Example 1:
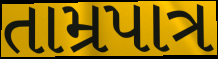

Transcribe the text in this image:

તામ્રપાત્ર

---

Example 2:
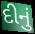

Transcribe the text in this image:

દીનું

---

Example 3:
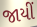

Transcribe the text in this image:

જાયીં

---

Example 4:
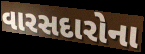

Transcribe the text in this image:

વારસદારોના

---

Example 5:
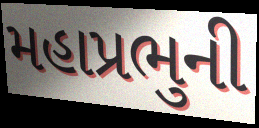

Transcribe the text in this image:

મહાપ્રભુની